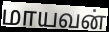
மாயவன்